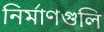
নির্মাণগুলি